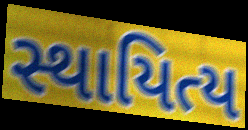
સ્થાયિત્ય